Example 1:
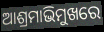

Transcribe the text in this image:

ଆଶ୍ରମାଭିମୁଖରେ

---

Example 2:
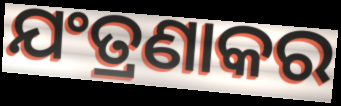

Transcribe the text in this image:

ଯଂତ୍ରଣାକର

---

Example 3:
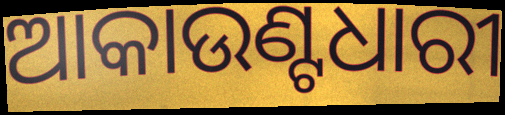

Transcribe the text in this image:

ଆକାଉଣ୍ଟଧାରୀ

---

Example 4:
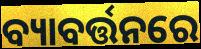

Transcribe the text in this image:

ବ୍ୟାବର୍ତ୍ତନରେ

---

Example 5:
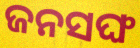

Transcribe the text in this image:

ଜନସଙ୍ଘ